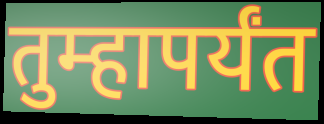
तुम्हापर्यंत